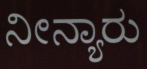
ನೀನ್ಯಾರು